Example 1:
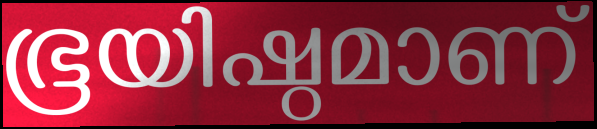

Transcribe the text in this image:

ഭൂയിഷ്ഠമാണ്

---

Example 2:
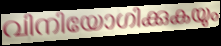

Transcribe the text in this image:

വിനിയോഗിക്കുകയും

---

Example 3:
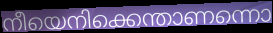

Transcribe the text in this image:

നീയെനിക്കെന്താണന്നൊ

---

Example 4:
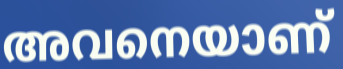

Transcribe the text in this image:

അവനെയാണ്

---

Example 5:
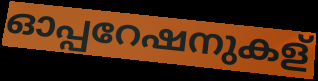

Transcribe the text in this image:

ഓപ്പറേഷനുകള്